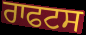
ਰਾਫਟਸ